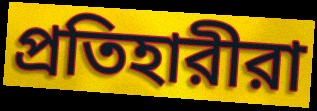
প্রতিহারীরা